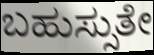
ಬಹುಸ್ಸುತೇ